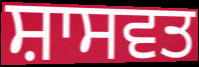
ਸ਼ਾਸਵਤ